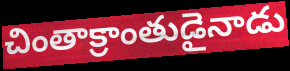
చింతాక్రాంతుడైనాడు